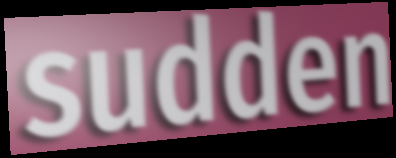
sudden